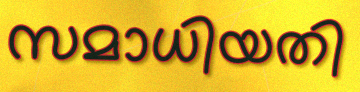
സമാധിയതി